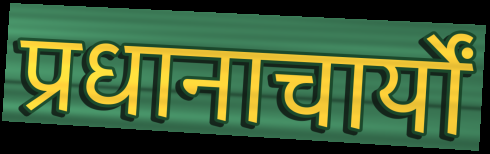
प्रधानाचार्यों